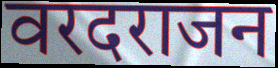
वरदराजन